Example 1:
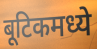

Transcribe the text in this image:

बूटिकमध्ये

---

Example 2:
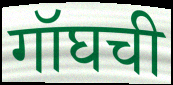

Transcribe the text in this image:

गॉघची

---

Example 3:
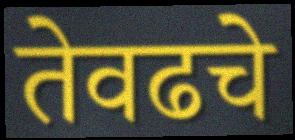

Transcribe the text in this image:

तेवढचे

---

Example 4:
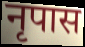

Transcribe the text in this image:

नृपास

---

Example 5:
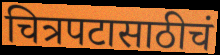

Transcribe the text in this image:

चित्रपटासाठीचं